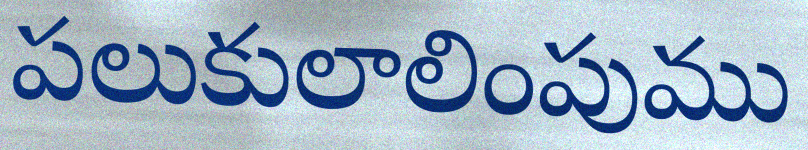
పలుకులాలింపుము